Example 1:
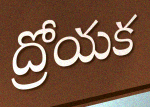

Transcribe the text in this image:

ద్రోయక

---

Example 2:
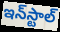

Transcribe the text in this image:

ఇన్‌స్టాల్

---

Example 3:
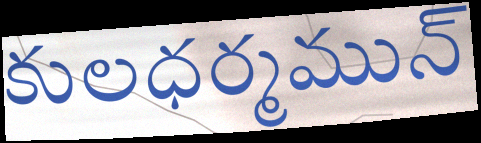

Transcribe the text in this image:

కులధర్మమున్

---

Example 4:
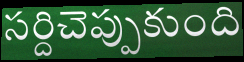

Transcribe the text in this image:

సర్దిచెప్పుకుంది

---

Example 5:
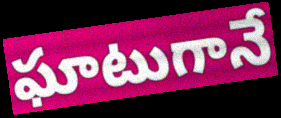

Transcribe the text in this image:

ఘాటుగానే